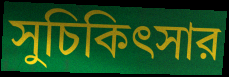
সুচিকিৎসার